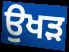
ਉਖੜ